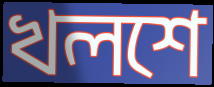
খলশে